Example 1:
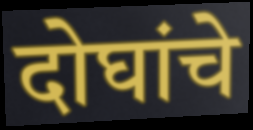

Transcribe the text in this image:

दोघांचे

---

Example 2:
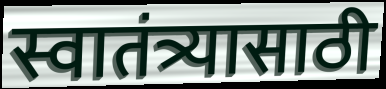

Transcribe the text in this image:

स्वातंत्र्यासाठी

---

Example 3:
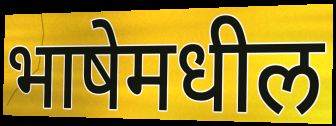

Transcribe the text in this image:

भाषेमधील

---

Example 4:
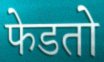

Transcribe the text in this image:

फेडतो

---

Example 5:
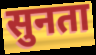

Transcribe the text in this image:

सुनता